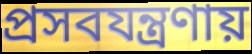
প্রসবযন্ত্রণায়